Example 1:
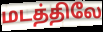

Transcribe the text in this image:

மடத்திலே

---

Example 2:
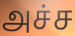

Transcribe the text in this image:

அச்ச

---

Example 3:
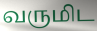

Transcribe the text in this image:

வருமிட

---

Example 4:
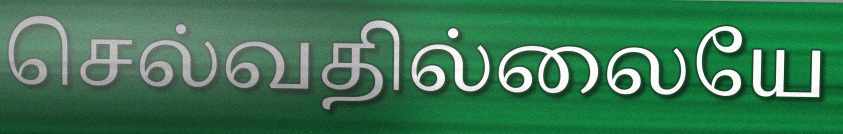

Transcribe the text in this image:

செல்வதில்லையே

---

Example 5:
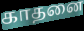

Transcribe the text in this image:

காதனை